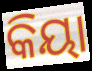
କିୟା